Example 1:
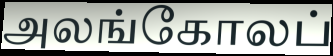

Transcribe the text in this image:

அலங்கோலப்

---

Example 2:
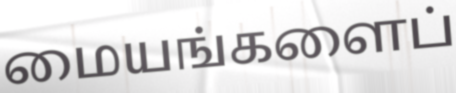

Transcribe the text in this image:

மையங்களைப்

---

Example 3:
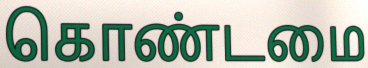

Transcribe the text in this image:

கொண்டமை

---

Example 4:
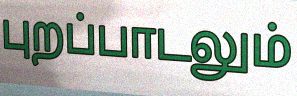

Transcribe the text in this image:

புறப்பாடலும்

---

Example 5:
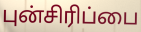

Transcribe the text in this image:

புன்சிரிப்பை